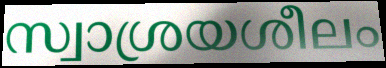
സ്വാശ്രയശീലം